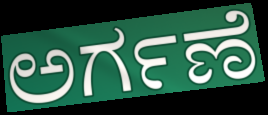
ಅರ್ಗಣೆ